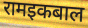
रामइकबाल